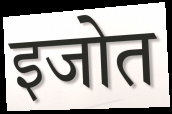
इजोत